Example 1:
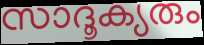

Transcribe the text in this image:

സാദൂക്യരും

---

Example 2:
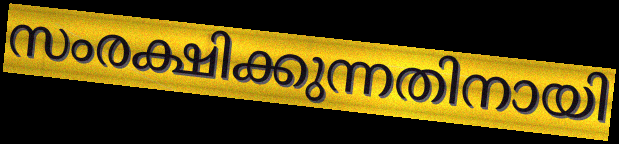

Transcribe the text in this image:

സംരക്ഷിക്കുന്നതിനായി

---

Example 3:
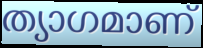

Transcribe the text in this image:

ത്യാഗമാണ്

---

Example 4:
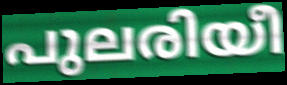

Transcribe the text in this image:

പുലരിയീ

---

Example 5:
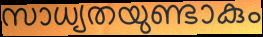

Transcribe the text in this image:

സാധ്യതയുണ്ടാകും